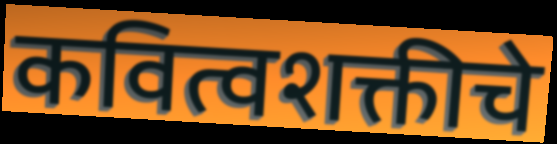
कवित्वशक्तीचे